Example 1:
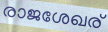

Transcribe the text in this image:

രാജശേഖര്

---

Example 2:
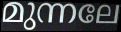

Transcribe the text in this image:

മുന്നലേ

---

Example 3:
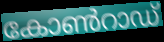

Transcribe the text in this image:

കോൺറാഡ്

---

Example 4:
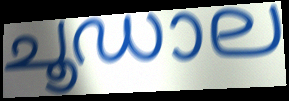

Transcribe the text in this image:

ചൂഡാല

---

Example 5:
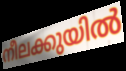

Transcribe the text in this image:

നീലക്കുയിൽ